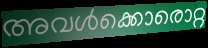
അവൾക്കൊരൊറ്റ